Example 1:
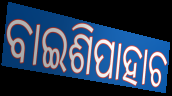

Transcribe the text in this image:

ବାଇଶିପାହାଚ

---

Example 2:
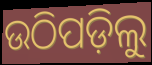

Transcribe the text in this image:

ଉଠିପଡ଼ିଲୁ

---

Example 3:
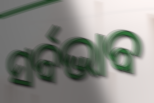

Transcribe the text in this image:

ସର୍ବଭାବ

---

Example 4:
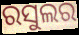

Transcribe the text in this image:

ରସୁଲର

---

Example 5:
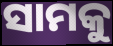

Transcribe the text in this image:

ସାମକୁ